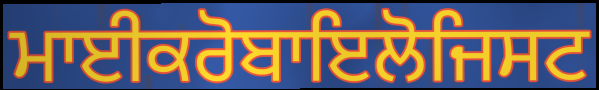
ਮਾਈਕਰੋਬਾਇਲੋਜਿਸਟ